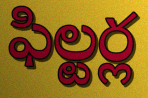
ఫిల్టర్ల